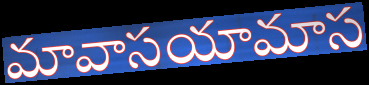
మావాసయామాస